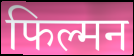
फिल्मन